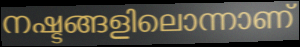
നഷ്ടങ്ങളിലൊന്നാണ്